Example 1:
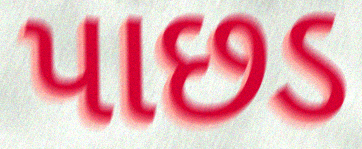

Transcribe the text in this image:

પાછડ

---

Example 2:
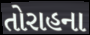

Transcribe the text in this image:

તોરાહના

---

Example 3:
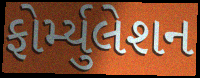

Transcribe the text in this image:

ફોર્મ્યુલેશન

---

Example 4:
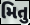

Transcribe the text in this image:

મિતુ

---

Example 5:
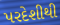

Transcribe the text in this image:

પરદેશીથી